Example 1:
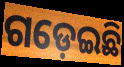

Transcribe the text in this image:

ଗଡ଼େଇଛି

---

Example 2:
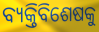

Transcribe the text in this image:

ବ୍ୟକ୍ତିବିଶେଷକୁ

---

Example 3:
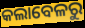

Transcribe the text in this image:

କଲାବେଳରୁ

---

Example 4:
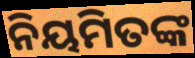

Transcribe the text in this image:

ନିୟମିତଙ୍କ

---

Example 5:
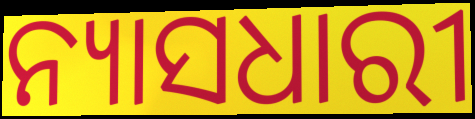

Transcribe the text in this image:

ନ୍ୟାସଧାରୀ